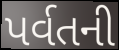
પર્વતની